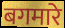
बगमारे